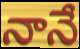
నానే